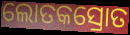
ଲୋତକସ୍ରୋତ